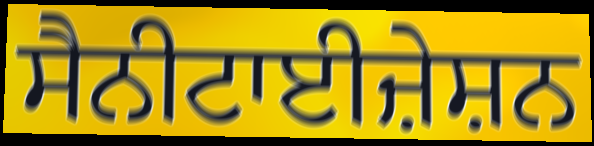
ਸੈਨੀਟਾਈਜ਼ੇਸ਼ਨ